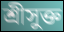
শ্রীসুক্ত